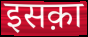
इसक़ा